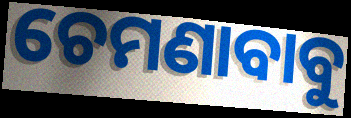
ଚେମଣାବାବୁ